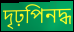
দৃঢ়পিনদ্ধ